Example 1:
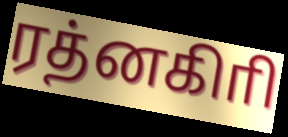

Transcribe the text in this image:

ரத்னகிரி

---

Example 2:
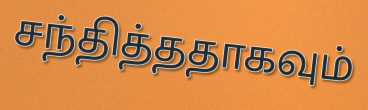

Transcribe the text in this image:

சந்தித்ததாகவும்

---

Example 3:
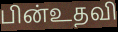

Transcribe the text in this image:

பின்உதவி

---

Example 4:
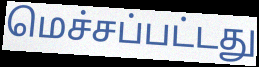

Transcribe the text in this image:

மெச்சப்பட்டது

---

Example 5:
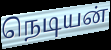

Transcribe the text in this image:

நெடியன்